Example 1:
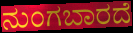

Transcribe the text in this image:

ನುಂಗಬಾರದೆ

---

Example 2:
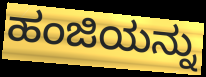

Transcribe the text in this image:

ಹಂಜಿಯನ್ನು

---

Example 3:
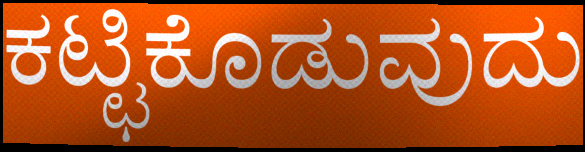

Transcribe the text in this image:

ಕಟ್ಟಿಕೊಡುವುದು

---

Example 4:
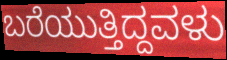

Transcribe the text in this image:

ಬರೆಯುತ್ತಿದ್ದವಳು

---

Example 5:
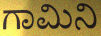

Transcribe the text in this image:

ಗಾಮಿನಿ